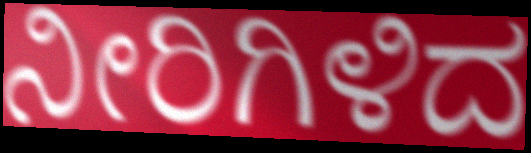
ನೀರಿಗಿಳಿದ